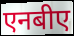
एनबीए